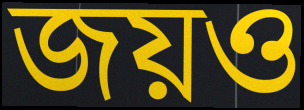
জয়ও